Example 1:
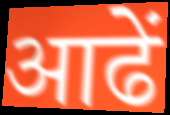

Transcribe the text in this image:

आढें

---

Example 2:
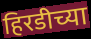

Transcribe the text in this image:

हिरडीच्या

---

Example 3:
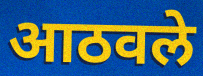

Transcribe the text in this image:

आठवले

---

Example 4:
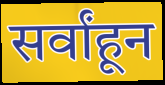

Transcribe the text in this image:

सर्वांहून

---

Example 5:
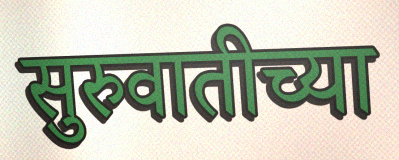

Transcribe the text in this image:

सुरुवातीच्या